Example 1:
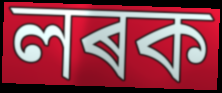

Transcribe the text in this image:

লৰক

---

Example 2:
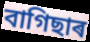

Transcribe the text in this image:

বাগিছাৰ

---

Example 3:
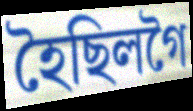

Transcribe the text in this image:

হৈছিলগৈ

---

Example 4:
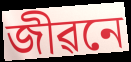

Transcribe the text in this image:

জীৱনে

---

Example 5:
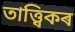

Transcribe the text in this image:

তাত্ত্বিকৰ